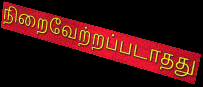
நிறைவேற்றப்படாதது